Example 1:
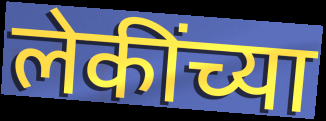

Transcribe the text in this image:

लेकींच्या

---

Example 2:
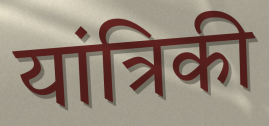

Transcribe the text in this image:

यांत्रिकी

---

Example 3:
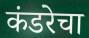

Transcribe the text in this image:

कंडरेचा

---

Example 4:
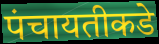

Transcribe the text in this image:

पंचायतीकडे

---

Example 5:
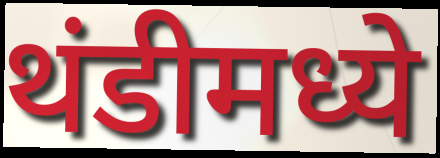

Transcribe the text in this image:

थंडीमध्ये